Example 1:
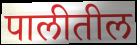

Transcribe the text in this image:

पालीतील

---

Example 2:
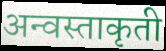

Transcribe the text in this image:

अन्वस्ताकृती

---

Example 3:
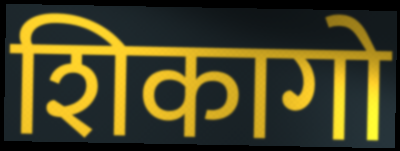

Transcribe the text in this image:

शिकागो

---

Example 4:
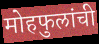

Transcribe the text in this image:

मोहफुलांची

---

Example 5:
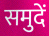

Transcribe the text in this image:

समुदें